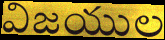
విజయుల